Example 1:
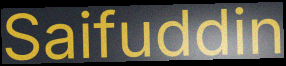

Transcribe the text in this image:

Saifuddin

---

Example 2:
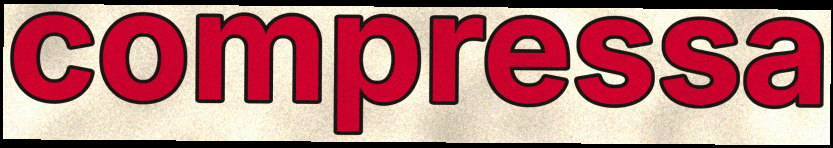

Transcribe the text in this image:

compressa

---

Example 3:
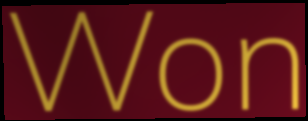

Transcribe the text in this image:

Won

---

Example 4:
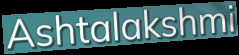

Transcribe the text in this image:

Ashtalakshmi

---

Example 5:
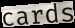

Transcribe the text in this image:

cards